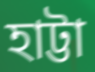
হাট্টা